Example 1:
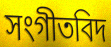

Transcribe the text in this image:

সংগীতবিদ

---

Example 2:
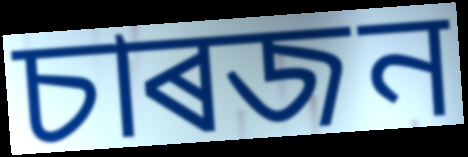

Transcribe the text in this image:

চাৰজন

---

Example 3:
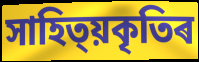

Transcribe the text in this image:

সাহিত্য়কৃতিৰ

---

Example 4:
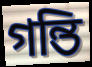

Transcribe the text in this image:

গন্তি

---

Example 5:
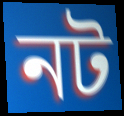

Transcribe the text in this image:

নট